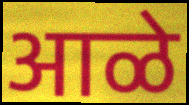
आळे